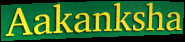
Aakanksha